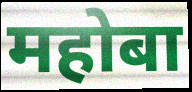
महोबा